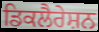
ਡਿਕਲੈਰੇਸ਼ਨ